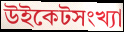
উইকেটসংখ্যা